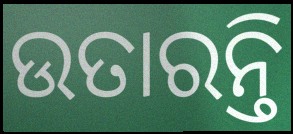
ଉତାରନ୍ତି